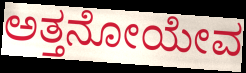
ಅತ್ತನೋಯೇವ